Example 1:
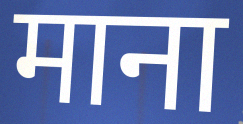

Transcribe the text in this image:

माना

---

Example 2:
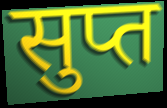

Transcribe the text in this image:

सुप्त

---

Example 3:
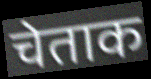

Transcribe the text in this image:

चेताक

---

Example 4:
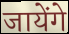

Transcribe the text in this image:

जायेंगे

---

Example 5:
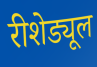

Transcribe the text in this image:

रीशेड्यूल